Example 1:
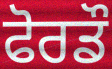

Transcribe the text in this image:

ਫੋਰਡੌ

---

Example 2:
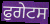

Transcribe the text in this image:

ਫੁਗੇਟਸ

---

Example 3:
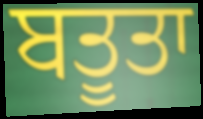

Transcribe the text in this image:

ਬਤੂਤਾ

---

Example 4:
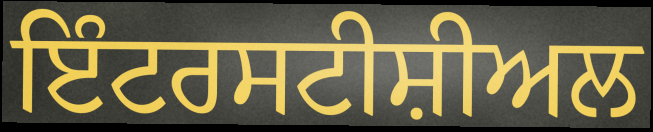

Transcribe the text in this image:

ਇੰਟਰਸਟੀਸ਼ੀਅਲ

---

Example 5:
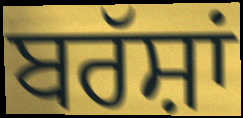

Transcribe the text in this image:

ਬਰੱਸ਼ਾਂ